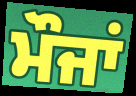
ਮੌਜਾਂ